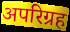
अपरिग्रह